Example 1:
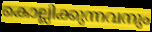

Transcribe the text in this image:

കൊല്ലിക്കുന്നവനും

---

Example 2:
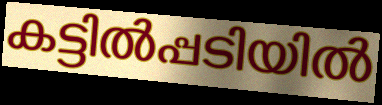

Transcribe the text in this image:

കട്ടിൽപ്പടിയിൽ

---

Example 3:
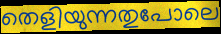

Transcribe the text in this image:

തെളിയുന്നതുപോലെ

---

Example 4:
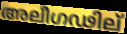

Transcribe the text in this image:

അലീഗഢില്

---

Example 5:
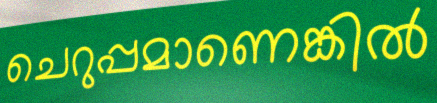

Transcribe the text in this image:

ചെറുപ്പമാണെങ്കിൽ